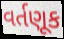
વર્તણૂક